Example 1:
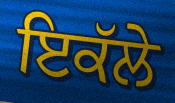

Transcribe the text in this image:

ਇਕੱਲੇ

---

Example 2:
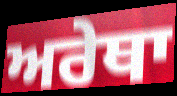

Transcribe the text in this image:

ਅਰੇਥਾ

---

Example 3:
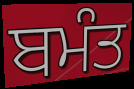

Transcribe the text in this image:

ਬਮੰਤ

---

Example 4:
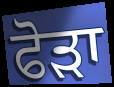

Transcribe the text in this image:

ਫੋੜਾ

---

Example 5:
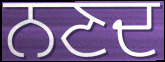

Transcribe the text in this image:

ਨਣਦ